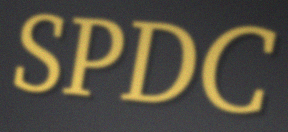
SPDC